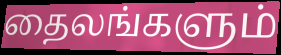
தைலங்களும்